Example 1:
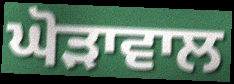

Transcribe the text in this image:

ਘੋੜਾਵਾਲ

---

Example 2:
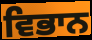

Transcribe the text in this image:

ਵਿਭਾਨ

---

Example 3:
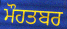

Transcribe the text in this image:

ਮੌਹਤਬਰ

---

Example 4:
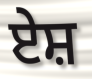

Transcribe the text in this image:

ਏਸ਼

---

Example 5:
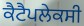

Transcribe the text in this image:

ਕੈਟੈਪਲੇਕਸੀ